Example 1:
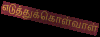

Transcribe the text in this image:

எடுத்துக்கொள்வாள்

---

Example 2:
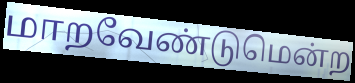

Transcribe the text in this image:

மாறவேண்டுமென்ற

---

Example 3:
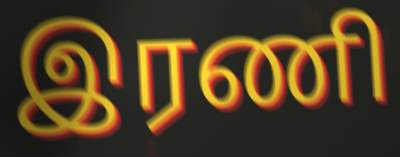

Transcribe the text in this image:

இரணி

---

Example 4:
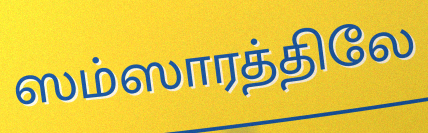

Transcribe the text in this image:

ஸம்ஸாரத்திலே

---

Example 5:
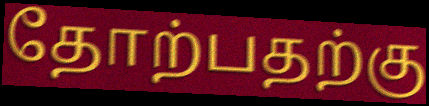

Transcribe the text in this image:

தோற்பதற்கு